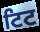
ਟਿਟ